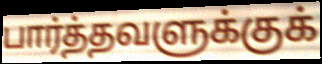
பார்த்தவளுக்குக்